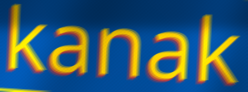
kanak